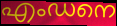
എംഡനെ